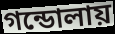
গন্ডোলায়